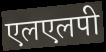
एलएलपी